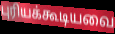
புரியக்கூடியவை